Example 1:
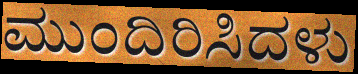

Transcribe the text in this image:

ಮುಂದಿರಿಸಿದಳು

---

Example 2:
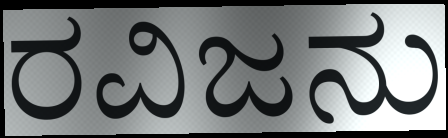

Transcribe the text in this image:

ರವಿಜನು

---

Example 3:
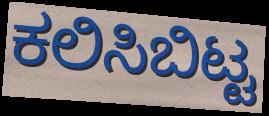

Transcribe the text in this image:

ಕಲಿಸಿಬಿಟ್ಟ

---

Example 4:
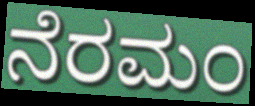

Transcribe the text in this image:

ನೆರಮಂ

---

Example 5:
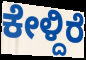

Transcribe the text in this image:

ಕೇಳ್ದಿರೆ